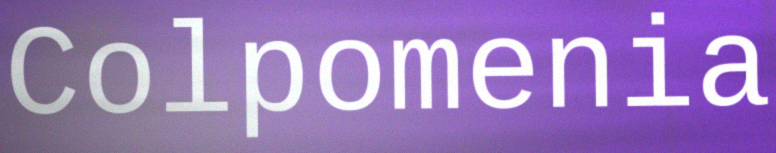
Colpomenia